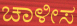
ಚಾಳೀಸ